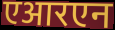
एआरएन